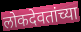
लोकदेवतांच्या